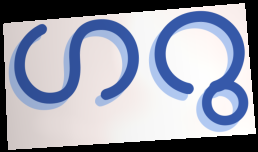
ഗറു